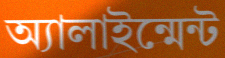
অ্যালাইন্মেন্ট